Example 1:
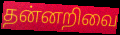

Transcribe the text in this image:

தன்னறிவை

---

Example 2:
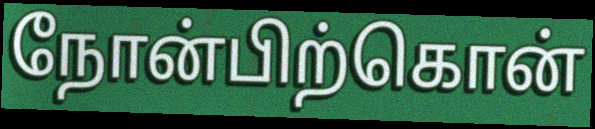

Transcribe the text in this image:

நோன்பிற்கொன்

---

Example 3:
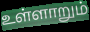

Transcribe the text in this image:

உள்ளாறும்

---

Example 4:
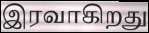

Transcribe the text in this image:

இரவாகிறது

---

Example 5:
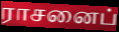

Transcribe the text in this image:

ராசனைப்